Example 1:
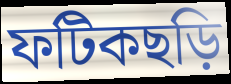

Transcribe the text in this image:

ফটিকছড়ি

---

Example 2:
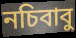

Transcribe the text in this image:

নচিবাবু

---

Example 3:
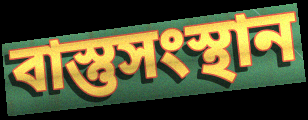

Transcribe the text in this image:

বাস্তুসংস্থান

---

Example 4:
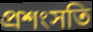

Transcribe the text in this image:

প্রশংসতি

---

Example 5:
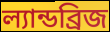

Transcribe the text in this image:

ল্যান্ডব্রিজ